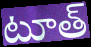
టూత్